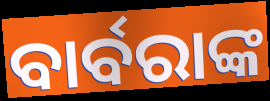
ବାର୍ବରାଙ୍କ